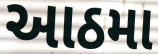
આઠમા